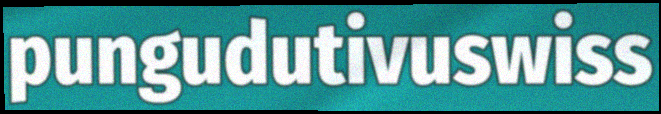
pungudutivuswiss